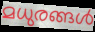
മധുരങ്ങൾ